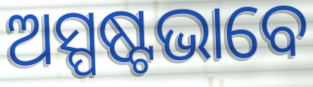
ଅସ୍ପଷ୍ଟଭାବେ